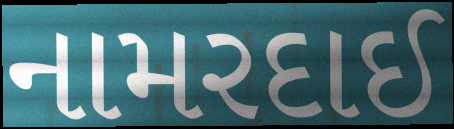
નામરદાઈ